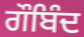
ਗੌਬਿੰਦ